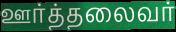
ஊர்த்தலைவர்